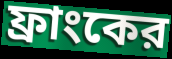
ফ্রাংকের